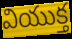
వియుక్త